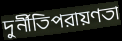
দুর্নীতিপরায়ণতা